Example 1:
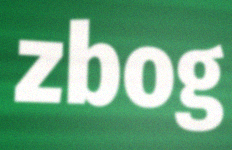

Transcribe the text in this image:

zbog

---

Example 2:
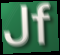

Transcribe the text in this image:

Jf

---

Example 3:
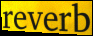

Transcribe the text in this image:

reverb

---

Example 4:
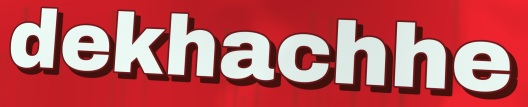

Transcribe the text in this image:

dekhachhe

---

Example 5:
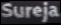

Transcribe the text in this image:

Sureja